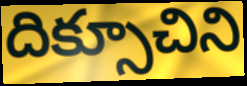
దిక్సూచిని